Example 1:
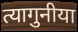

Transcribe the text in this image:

त्यागुनीया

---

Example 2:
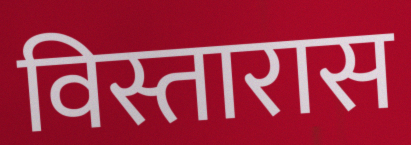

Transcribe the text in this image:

विस्तारास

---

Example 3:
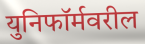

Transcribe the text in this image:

युनिफॉर्मवरील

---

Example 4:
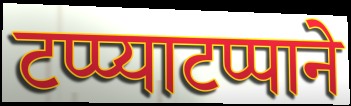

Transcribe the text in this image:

टप्प्याटप्पाने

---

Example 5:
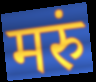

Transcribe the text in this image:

मरुं